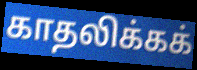
காதலிக்கக்